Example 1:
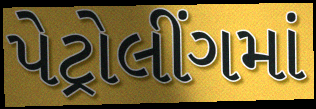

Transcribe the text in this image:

પેટ્રોલીંગમાં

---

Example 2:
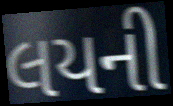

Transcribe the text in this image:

લયની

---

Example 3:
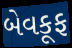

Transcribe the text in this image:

બેવકૂફ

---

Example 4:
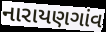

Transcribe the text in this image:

નારાયણગાંવ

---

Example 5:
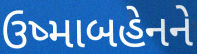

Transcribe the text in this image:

ઉષ્માબહેનને